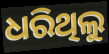
ଧରିଥିଲୁ